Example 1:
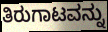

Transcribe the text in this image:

ತಿರುಗಾಟವನ್ನು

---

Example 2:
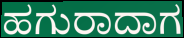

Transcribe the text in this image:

ಹಗುರಾದಾಗ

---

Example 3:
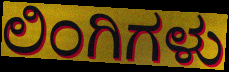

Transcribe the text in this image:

ಲಿಂಗಿಗಳು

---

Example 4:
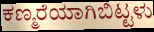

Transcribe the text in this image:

ಕಣ್ಮರೆಯಾಗಿಬಿಟ್ಟಳು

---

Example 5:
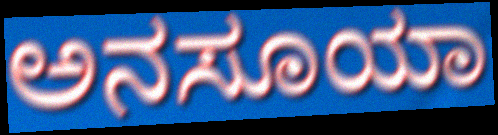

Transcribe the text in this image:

ಅನಸೂಯಾ